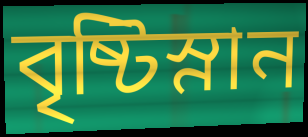
বৃষ্টিস্নান